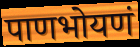
पाणभोयणं